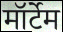
मॉर्टेम